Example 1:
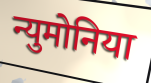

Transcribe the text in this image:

न्युमोनिया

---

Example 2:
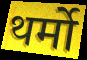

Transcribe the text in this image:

थर्मो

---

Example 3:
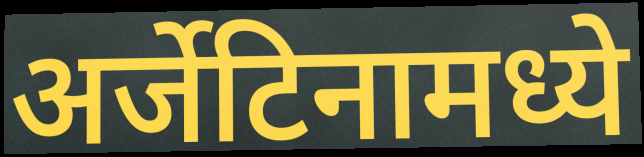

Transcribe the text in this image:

अर्जेटिनामध्ये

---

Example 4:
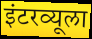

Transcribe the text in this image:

इंटरव्यूला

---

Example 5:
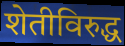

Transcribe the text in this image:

शेतीविरुद्ध